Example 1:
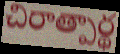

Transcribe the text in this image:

చిరాత్పార్థ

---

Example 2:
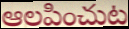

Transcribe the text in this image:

ఆలపించుట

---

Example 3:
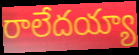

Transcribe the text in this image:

రాలేదయ్యా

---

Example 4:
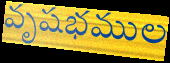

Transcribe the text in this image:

వృషభముల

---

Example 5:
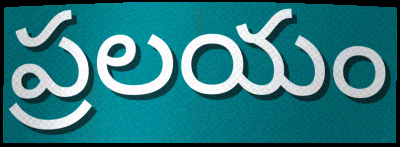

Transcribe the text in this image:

ప్రలయం